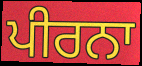
ਪੀਰਨਾ